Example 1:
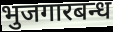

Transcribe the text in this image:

भुजगारबन्ध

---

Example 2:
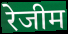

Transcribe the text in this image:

रेजीम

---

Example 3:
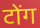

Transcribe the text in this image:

टोंग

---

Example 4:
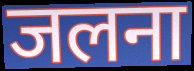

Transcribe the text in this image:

जलना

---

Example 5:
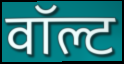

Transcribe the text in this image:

वॉल्ट